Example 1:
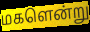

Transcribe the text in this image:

மகளென்று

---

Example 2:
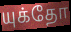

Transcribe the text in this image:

யுக்தோ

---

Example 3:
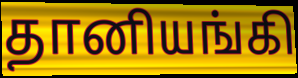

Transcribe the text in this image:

தானியங்கி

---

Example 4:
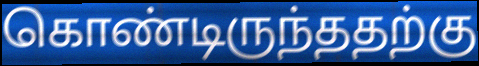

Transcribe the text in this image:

கொண்டிருந்ததற்கு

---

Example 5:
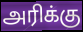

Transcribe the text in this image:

அரிக்கு